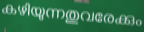
കഴിയുന്നതുവരേക്കും